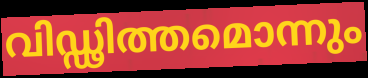
വിഡ്ഢിത്തമൊന്നും